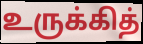
உருக்கித்